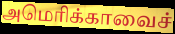
அமெரிக்காவைச்